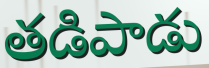
తడిపాడు